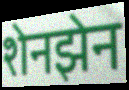
शेनझेन